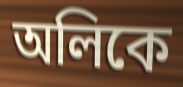
অলিকে